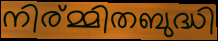
നിര്മ്മിതബുദ്ധി